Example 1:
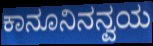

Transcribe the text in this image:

ಕಾನೂನಿನನ್ವಯ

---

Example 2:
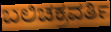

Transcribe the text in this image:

ಬಲಿಚಕ್ರವರ್ತಿ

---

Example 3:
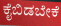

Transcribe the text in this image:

ಕೈಬಿಡಬೇಕೆ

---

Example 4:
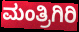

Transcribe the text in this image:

ಮಂತ್ರಿಗಿರಿ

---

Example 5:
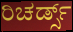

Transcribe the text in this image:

ರಿಚರ್ಡ್ಸ್